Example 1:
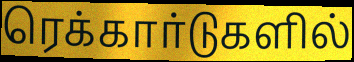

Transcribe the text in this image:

ரெக்கார்டுகளில்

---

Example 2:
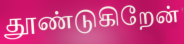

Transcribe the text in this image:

தூண்டுகிறேன்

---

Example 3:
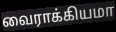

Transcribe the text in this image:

வைராக்கியமா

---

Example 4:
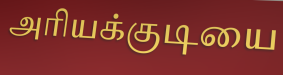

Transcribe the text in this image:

அரியக்குடியை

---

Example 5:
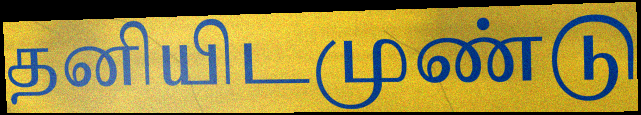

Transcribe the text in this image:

தனியிடமுண்டு